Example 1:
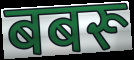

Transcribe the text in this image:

बबरू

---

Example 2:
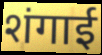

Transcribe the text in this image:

शंगाई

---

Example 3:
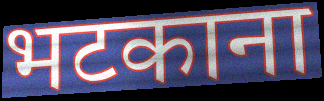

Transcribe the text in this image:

भटकाना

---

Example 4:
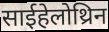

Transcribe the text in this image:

साईहेलोथ्रिन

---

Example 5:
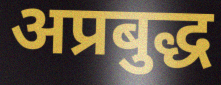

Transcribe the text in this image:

अप्रबुद्ध